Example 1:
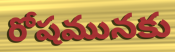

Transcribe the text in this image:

రోషమునకు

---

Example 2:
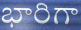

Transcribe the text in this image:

భారిగా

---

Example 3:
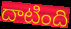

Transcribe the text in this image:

దాటింది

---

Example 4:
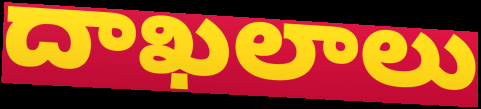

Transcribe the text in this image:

దాఖలాలు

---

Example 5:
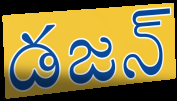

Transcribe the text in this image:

డజన్